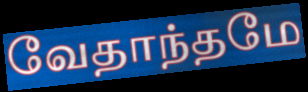
வேதாந்தமே